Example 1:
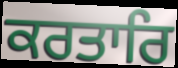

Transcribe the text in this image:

ਕਰਤਾਰਿ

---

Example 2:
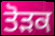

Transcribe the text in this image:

ਤੋੜਕ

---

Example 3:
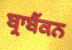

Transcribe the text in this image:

ਬ੍ਰਾਬੈਂਕਨ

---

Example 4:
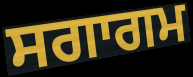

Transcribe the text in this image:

ਸਗਾਗਮ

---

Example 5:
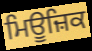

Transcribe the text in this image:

ਮਿਊਜ਼ਿਕ